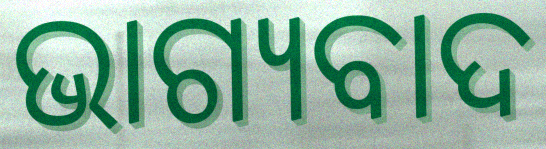
ଭାଗ୍ୟବାଦ